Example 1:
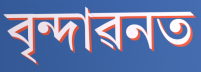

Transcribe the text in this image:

বৃন্দাৱনত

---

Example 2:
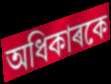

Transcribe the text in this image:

অধিকাৰকে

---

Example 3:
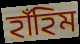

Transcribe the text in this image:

হাঁহিম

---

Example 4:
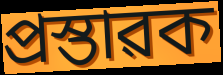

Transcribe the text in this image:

প্ৰস্তাৱক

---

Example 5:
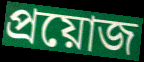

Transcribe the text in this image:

প্ৰয়োজ